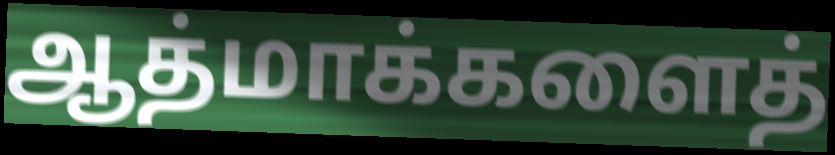
ஆத்மாக்களைத்